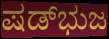
ಷಡ್‌ಭುಜ